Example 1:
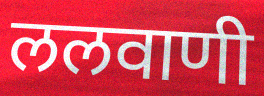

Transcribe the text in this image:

ललवाणी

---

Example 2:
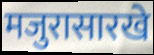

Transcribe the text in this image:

मजुरासारखे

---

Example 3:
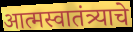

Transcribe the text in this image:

आत्मस्वातंत्र्याचे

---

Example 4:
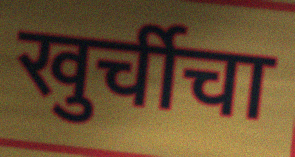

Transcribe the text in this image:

खुर्चीचा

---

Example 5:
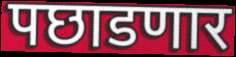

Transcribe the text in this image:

पछाडणार